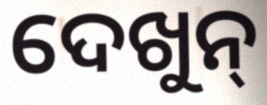
ଦେଖୁନ୍